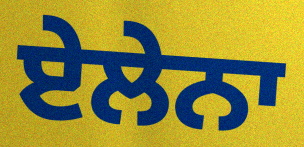
ਏਲੇਨਾ